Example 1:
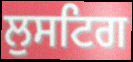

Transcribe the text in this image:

ਲੁਸਟਿਗ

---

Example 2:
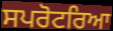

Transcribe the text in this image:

ਸਪਰੋਟਰਿਆ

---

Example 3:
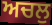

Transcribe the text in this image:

ਅਚਲੁ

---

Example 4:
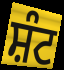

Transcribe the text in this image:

ਸ਼ੰਟ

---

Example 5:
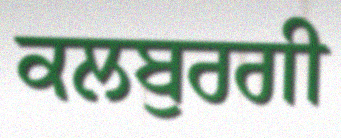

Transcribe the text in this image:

ਕਲਬੁਰਗੀ